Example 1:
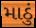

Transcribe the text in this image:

માઠું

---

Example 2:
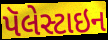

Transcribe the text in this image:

પૅલેસ્ટાઇન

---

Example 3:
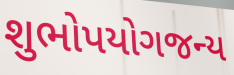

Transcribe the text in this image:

શુભોપયોગજન્ય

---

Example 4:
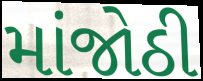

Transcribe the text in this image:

માંજોઠી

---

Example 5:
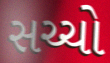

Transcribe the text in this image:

સચ્ચો